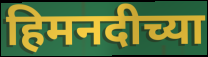
हिमनदीच्या